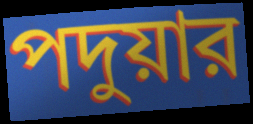
পদুয়ার